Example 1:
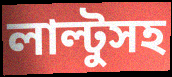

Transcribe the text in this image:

লাল্টুসহ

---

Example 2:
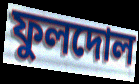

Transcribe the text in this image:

ফুলদোল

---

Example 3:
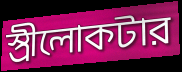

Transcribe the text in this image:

স্ত্রীলোকটার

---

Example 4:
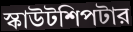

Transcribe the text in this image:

স্কাউটশিপটার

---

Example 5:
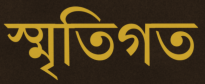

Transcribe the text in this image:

স্মৃতিগত